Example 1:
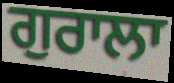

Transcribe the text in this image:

ਗੁਰਾਲਾ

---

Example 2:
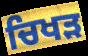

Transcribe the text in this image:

ਚਿਖੜ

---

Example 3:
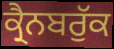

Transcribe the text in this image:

ਕ੍ਰੈਨਬਰੁੱਕ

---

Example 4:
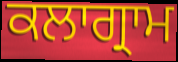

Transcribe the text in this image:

ਕਲਾਗ੍ਰਾਮ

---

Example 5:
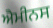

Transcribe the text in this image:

ਐਮੀਨਸ